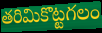
తరిమికొట్టగలం